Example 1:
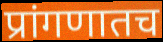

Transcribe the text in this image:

प्रांगणातच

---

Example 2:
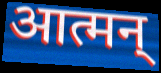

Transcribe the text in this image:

आत्मन्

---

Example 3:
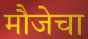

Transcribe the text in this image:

मौजेचा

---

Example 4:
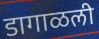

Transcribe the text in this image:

डागाळली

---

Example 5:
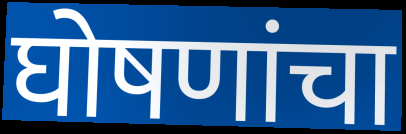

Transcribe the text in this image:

घोषणांचा